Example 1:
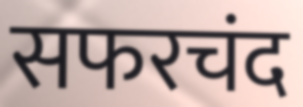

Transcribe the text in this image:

सफरचंद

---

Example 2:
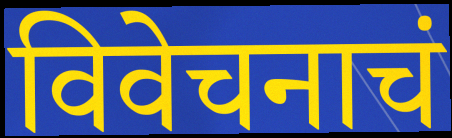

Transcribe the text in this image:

विवेचनाचं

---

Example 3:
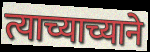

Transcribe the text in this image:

त्याच्याच्याने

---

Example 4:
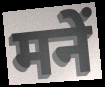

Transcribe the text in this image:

मनें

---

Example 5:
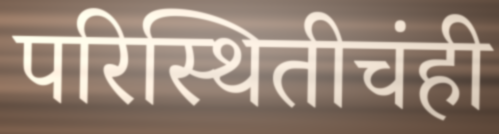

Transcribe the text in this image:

परिस्थितीचंही